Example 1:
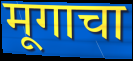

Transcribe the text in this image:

मूगाचा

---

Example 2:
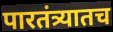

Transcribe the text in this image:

पारतंत्र्यातच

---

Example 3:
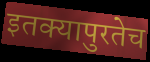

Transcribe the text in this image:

इतक्यापुरतेच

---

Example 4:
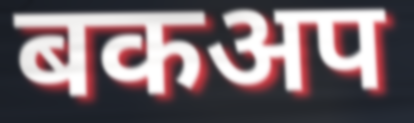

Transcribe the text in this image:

बकअप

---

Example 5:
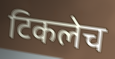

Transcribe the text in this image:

टिकलेच